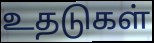
உதடுகள்